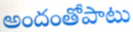
అందంతోపాటు